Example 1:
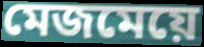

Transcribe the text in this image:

মেজমেয়ে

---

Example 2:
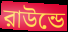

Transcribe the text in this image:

রাউন্ডে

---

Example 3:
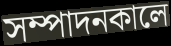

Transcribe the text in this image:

সম্পাদনকালে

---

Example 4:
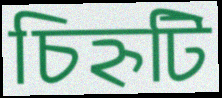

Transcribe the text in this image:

চিহ্নটি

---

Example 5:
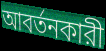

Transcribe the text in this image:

আবর্তনকারী